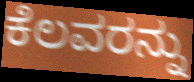
ಕೆಲವರನ್ನು